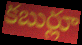
కబుర్లూ